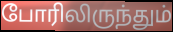
போரிலிருந்தும்